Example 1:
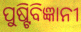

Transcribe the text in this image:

ପୁଷ୍ଟିବିଜ୍ଞାନୀ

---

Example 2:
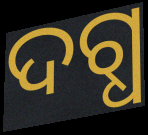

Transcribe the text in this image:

ଦଗ୍ଧ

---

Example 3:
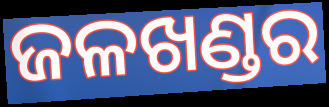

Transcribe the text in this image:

ଜଳଖଣ୍ଡର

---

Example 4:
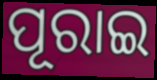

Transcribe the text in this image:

ପୂରାଇ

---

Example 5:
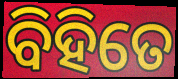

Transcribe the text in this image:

ବିହିତେ